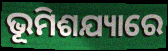
ଭୂମିଶଯ୍ୟାରେ